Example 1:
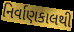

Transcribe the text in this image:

નિર્વાણકાલથી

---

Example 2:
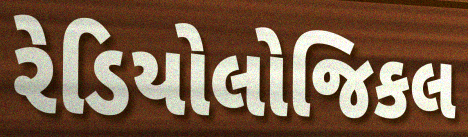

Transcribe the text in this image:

રેડિયોલોજિકલ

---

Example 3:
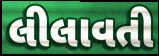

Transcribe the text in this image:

લીલાવતી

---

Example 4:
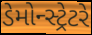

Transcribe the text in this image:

ડેમોન્સ્ટ્રેટરે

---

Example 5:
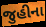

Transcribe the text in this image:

જુહીના